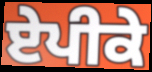
ਏਪੀਕੇ